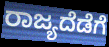
ರಾಜ್ಯದೆಡೆಗೆ